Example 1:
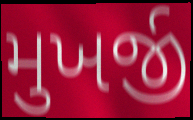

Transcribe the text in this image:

મુખર્જી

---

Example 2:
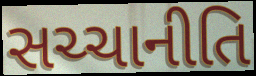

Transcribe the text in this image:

સચ્ચાનીતિ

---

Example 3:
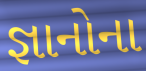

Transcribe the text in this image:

જ્ઞાનોના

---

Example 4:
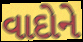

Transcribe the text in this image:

વાદોને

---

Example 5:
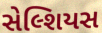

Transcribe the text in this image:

સેલ્શિયસ